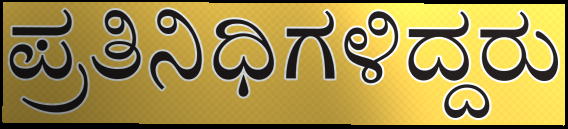
ಪ್ರತಿನಿಧಿಗಳಿದ್ದರು